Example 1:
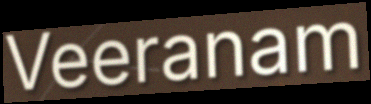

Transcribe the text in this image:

Veeranam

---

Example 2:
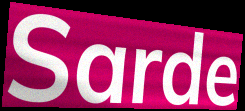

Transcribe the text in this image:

Sarde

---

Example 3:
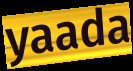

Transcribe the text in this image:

yaada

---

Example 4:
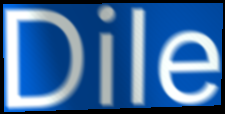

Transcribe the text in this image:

Dile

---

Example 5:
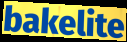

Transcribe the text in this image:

bakelite